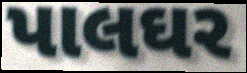
પાલઘર